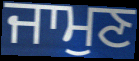
ਜਾਮੁਣ